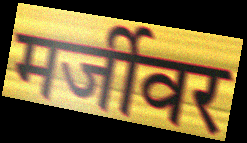
मर्जीवर